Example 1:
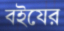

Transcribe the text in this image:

বইযের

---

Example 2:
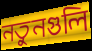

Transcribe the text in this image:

নতুনগুলি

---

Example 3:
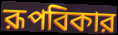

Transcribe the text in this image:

রূপবিকার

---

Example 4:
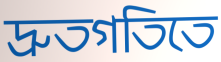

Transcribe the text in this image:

দ্রুতগতিতে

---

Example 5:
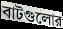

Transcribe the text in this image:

বাটগুলোর